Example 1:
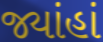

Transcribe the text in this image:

જ્યાંહાં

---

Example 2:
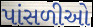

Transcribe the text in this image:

પાંસળીઓ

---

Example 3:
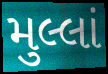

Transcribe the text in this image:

મુલ્લાં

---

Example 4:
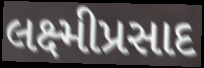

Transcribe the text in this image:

લક્ષ્મીપ્રસાદ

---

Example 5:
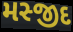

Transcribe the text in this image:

મસ્જીદ